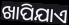
ଖାପିଯାଏ